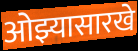
ओझ्यासारखे